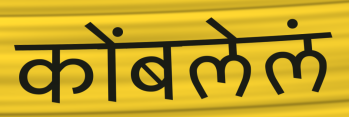
कोंबलेलं